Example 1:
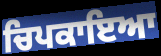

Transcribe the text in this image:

ਚਿਪਕਾਇਆ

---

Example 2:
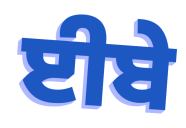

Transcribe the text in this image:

ਈਬੇ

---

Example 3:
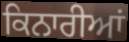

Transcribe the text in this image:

ਕਿਨਾਰੀਆਂ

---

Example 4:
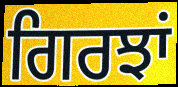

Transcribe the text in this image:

ਗਿਰਝਾਂ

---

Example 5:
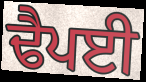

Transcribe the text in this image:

ਢੈਪਈ